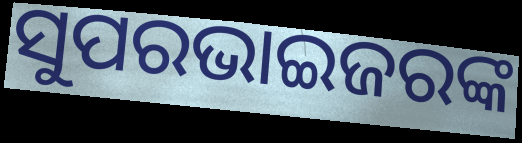
ସୁପରଭାଇଜରଙ୍କ